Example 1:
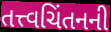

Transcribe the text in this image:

તત્ત્વચિંતનની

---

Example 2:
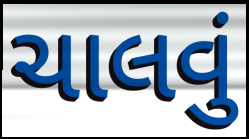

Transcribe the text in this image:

ચાલવું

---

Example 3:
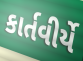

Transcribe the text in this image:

કાર્તવીર્યે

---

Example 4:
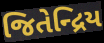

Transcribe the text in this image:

જિતેન્દ્રિય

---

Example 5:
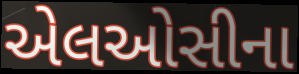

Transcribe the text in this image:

એલઓસીના